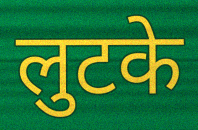
लुटके